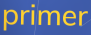
primer